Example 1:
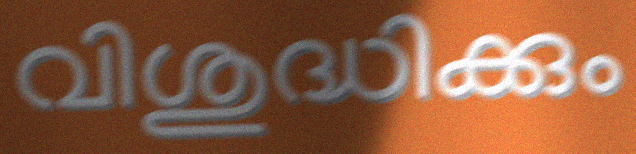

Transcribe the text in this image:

വിശുദ്ധിക്കും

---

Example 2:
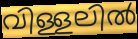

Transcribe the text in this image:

വിള്ളലിൽ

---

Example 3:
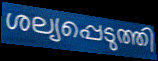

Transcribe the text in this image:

ശല്യപ്പെടുത്തി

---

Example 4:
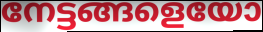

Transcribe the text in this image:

നേട്ടങ്ങളെയോ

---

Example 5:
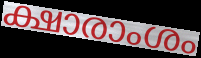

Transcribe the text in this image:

ക്ഷാരാംശം